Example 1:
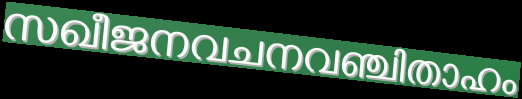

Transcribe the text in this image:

സഖീജനവചനവഞ്ചിതാഹം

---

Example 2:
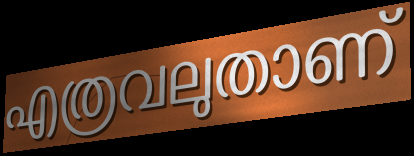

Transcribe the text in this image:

എത്രവലുതാണ്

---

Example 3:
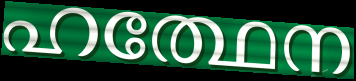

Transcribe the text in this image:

ഹത്ഥേന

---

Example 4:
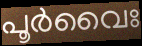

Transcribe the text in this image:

പൂർവൈഃ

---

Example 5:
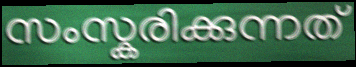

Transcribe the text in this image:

സംസ്കരിക്കുന്നത്